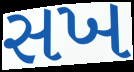
સખ